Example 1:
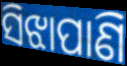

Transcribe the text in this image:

ସିଝାପାଣି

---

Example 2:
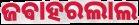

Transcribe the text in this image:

ଜଵାହରଲାଲ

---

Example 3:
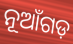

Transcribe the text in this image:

ନୂଆଁଗଡ଼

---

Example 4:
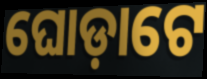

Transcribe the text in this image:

ଘୋଡ଼ାଟେ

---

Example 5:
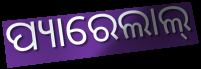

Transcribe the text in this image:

ପ୍ୟାରେଲାଲ୍